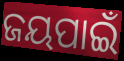
ଜୟପାଇଁ